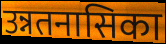
उन्नतनासिका